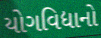
યોગવિદ્યાનો